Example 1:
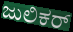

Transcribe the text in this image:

ಜುಲಿಕರ್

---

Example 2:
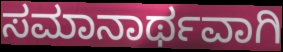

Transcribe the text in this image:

ಸಮಾನಾರ್ಥವಾಗಿ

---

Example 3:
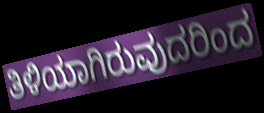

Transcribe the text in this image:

ತಿಳಿಯಾಗಿರುವುದರಿಂದ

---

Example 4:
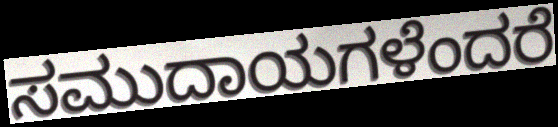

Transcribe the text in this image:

ಸಮುದಾಯಗಳೆಂದರೆ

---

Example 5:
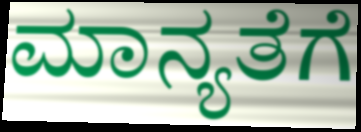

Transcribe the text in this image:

ಮಾನ್ಯತೆಗೆ